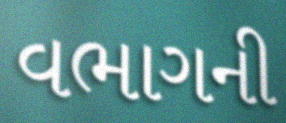
વભાગની